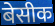
बेसीक